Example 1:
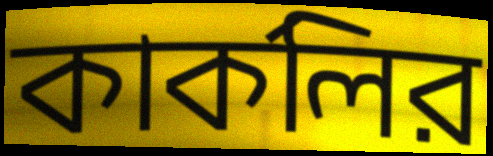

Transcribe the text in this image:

কার্কলির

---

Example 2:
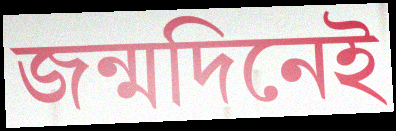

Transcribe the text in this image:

জন্মদিনেই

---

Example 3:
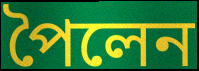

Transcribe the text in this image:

পৈলেন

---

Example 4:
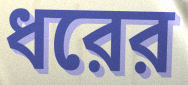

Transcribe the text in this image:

ধরের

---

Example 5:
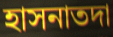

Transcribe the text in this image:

হাসনাতদা